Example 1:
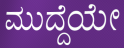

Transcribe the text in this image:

ಮುದ್ದೆಯೇ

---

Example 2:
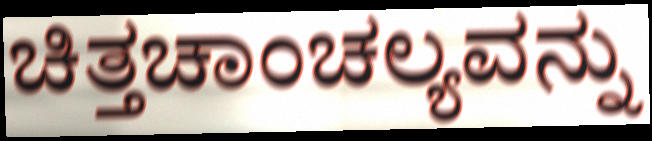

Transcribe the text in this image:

ಚಿತ್ತಚಾಂಚಲ್ಯವನ್ನು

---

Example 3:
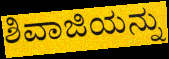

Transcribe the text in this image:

ಶಿವಾಜಿಯನ್ನು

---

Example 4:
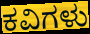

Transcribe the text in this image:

ಕವಿಗಳು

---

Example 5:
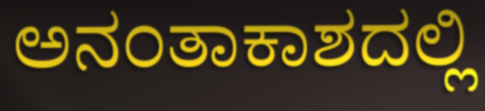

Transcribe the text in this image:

ಅನಂತಾಕಾಶದಲ್ಲಿ